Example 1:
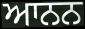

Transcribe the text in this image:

ਆਨਨ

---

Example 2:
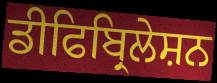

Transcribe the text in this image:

ਡੀਫਿਬ੍ਰਿਲੇਸ਼ਨ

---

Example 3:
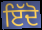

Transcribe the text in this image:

ਇੱਦੋ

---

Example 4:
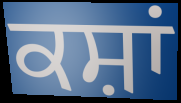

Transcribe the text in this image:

ਕਸ਼ਾਂ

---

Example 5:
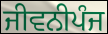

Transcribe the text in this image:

ਜੀਵਨੀਪੰਜ